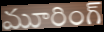
మూరింగ్